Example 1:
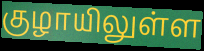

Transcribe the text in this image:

குழாயிலுள்ள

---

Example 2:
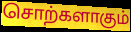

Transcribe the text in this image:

சொற்களாகும்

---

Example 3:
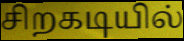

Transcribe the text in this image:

சிறகடியில்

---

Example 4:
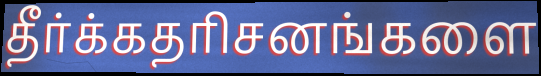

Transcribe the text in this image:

தீர்க்கதரிசனங்களை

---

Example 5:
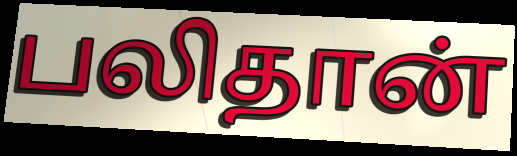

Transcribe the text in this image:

பலிதான்